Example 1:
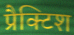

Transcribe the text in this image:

प्रैक्टिश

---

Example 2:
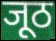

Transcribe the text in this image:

जूठ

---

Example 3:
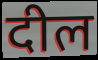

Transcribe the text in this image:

दील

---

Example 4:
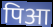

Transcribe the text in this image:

पिआ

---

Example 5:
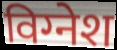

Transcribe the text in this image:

विग्‍नेश